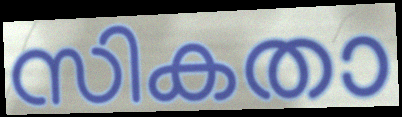
സികതാ